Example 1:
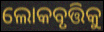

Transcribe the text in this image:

ଲୋକବୃତ୍ତିକୁ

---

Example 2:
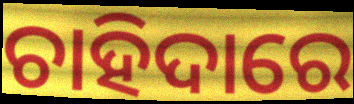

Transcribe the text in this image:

ଚାହିଦାରେ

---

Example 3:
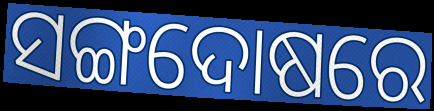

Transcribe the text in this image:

ସଙ୍ଗଦୋଷରେ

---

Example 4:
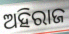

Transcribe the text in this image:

ଅହିରାଜ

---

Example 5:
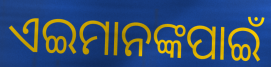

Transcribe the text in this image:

ଏଇମାନଙ୍କପାଇଁ